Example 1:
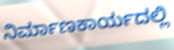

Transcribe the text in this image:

ನಿರ್ಮಾಣಕಾರ್ಯದಲ್ಲಿ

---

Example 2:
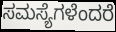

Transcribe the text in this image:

ಸಮಸ್ಯೆಗಳೆಂದರೆ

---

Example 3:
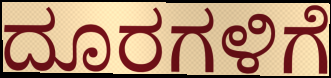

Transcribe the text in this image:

ದೂರಗಳಿಗೆ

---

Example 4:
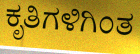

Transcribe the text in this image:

ಕೃತಿಗಳಿಗಿಂತ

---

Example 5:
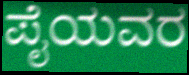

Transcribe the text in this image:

ಪೈಯವರ